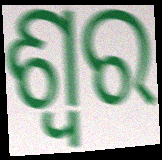
ଶ୍ୱର